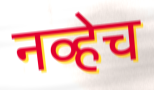
नव्हेच